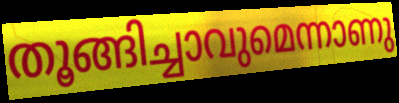
തൂങ്ങിച്ചാവുമെന്നാണു